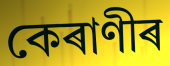
কেৰাণীৰ